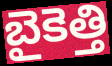
బైకెత్తి